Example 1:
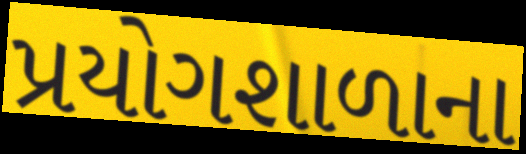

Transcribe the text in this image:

પ્રયોગશાળાના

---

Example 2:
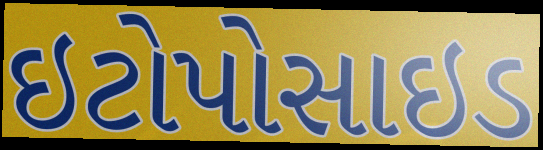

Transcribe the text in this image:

ઇટોપોસાઇડ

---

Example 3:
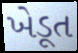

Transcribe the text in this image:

ખેડૂત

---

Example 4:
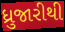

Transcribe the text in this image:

ધ્રુજારીથી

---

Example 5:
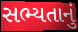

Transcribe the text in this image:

સભ્યતાનું